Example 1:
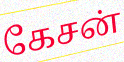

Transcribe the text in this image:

கேசன்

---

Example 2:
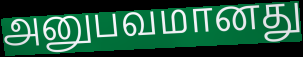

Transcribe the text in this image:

அனுபவமானது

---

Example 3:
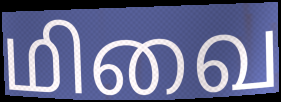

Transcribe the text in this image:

மிவை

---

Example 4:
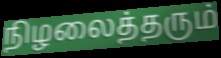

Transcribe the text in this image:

நிழலைத்தரும்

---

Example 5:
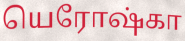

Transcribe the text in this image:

யெரோஷ்கா